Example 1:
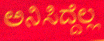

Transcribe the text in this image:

ಅನಿಸಿದ್ದೆಲ್ಲ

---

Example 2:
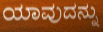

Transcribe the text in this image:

ಯಾವುದನ್ನು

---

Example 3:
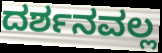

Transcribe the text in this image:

ದರ್ಶನವಲ್ಲ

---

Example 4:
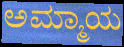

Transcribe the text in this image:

ಅಮ್ಮಾಯ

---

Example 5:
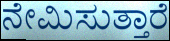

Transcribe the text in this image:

ನೇಮಿಸುತ್ತಾರೆ